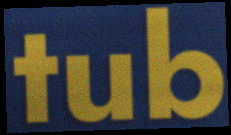
tub